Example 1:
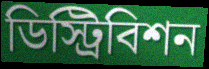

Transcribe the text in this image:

ডিস্ট্রিবিশন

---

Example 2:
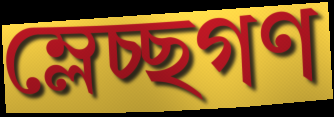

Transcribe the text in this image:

ম্লেচ্ছগণ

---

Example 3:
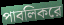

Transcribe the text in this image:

পাবলিকরে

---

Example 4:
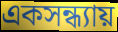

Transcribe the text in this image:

একসন্ধ্যায়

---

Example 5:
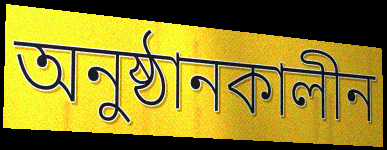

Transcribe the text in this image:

অনুষ্ঠানকালীন